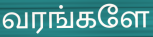
வரங்களே